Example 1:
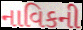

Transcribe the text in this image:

નાવિકની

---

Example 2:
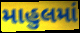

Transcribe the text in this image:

માહુલમાં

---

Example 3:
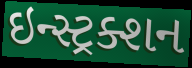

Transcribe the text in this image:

ઇન્સ્ટ્રક્શન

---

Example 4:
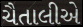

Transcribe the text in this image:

ચૈતાલીએ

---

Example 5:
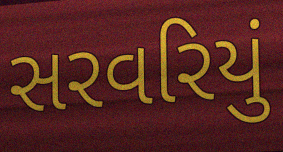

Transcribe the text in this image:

સરવરિયું